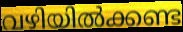
വഴിയിൽക്കണ്ട